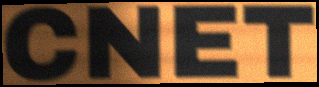
CNET